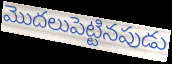
మొదలుపెట్టినపుడు